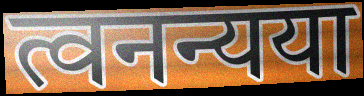
त्वनन्यया